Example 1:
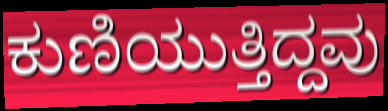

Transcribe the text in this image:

ಕುಣಿಯುತ್ತಿದ್ದವು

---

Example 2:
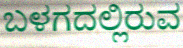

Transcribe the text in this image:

ಬಳಗದಲ್ಲಿರುವ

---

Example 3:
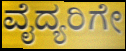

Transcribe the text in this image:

ವೈದ್ಯರಿಗೇ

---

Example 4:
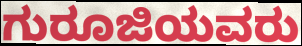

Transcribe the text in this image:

ಗುರೂಜಿಯವರು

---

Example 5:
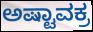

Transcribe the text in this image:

ಅಷ್ಟಾವಕ್ರ